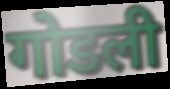
गोडली